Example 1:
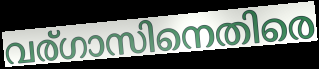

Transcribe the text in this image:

വര്ഗാസിനെതിരെ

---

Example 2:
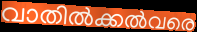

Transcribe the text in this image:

വാതിൽക്കൽവരെ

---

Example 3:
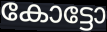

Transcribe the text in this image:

കോട്ടോ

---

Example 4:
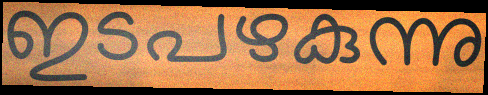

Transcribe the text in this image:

ഇടപഴകുന്നു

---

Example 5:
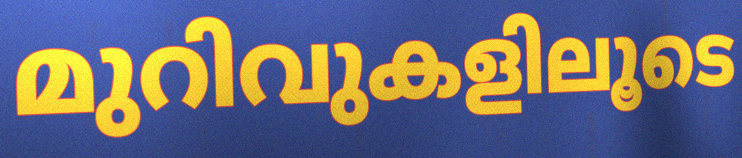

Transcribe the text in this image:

മുറിവുകളിലൂടെ